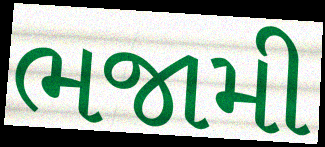
ભજામી